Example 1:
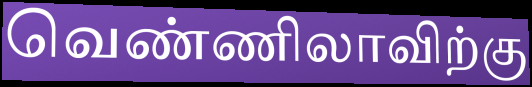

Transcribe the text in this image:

வெண்ணிலாவிற்கு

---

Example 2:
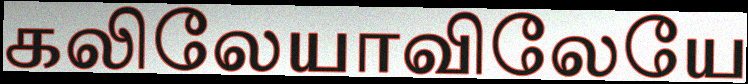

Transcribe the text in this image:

கலிலேயாவிலேயே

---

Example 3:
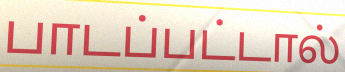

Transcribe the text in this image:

பாடப்பட்டால்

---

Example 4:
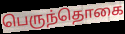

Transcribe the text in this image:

பெருந்தொகை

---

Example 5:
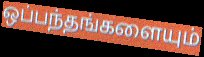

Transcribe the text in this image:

ஒப்பந்தங்களையும்